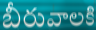
బీరువాలకి